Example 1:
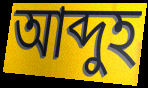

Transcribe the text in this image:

আব্দুহ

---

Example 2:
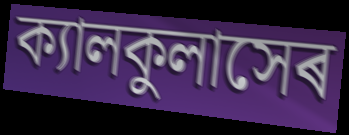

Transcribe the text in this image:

ক্যালকুলাসেৰ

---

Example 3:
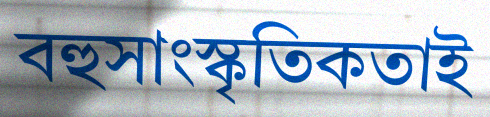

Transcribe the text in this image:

বহুসাংস্কৃতিকতাই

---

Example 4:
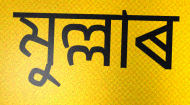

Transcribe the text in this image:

মুল্লাৰ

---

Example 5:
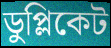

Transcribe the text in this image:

ডুপ্লিকেট